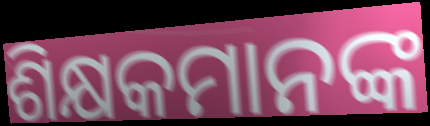
ଶିକ୍ଷକମାନଙ୍କ